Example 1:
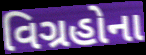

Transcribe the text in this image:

વિગ્રહોના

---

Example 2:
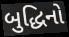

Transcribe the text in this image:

બુદ્ધિનો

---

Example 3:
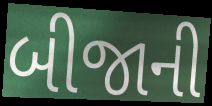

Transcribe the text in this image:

બીજાની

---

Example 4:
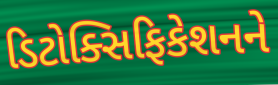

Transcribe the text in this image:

ડિટોક્સિફિકેશનને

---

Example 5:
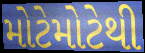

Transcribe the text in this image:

મોટેમોટેથી